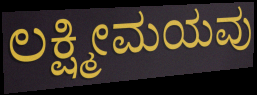
ಲಕ್ಷ್ಮೀಮಯವು